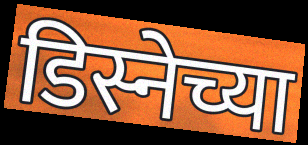
डिस्नेच्या